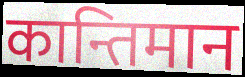
कान्तिमान